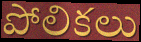
పోలికలు